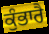
ਕੁੰਭਾਰੈ